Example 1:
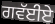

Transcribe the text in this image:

ਗਵੱਈਏ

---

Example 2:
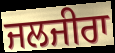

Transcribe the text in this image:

ਜਲਜੀਰਾ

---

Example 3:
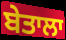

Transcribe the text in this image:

ਬੇਤਾਲਾ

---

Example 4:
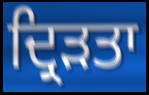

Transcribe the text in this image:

ਦ੍ਰਿੜਤਾ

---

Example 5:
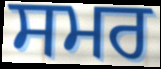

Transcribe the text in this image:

ਸਮਰ